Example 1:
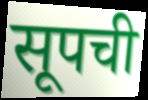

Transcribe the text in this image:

सूपची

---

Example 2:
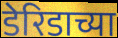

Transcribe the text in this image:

डेरिडाच्या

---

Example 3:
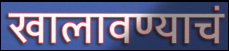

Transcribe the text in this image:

खालावण्याचं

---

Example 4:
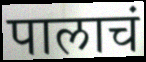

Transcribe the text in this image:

पालाचं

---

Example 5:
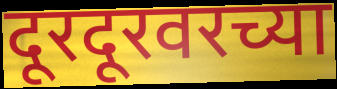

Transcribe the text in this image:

दूरदूरवरच्या